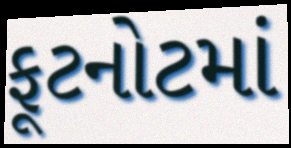
ફૂટનોટમાં